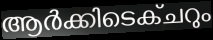
ആർക്കിടെക്ചറും